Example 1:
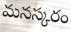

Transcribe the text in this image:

మనస్కరం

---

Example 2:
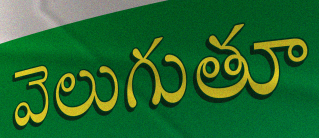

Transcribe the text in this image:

వెలుగుతూ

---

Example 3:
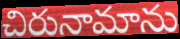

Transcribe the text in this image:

చిరునామాను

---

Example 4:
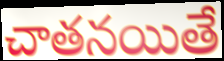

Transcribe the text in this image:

చాతనయితే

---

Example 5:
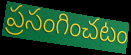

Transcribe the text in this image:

ప్రసంగించటం